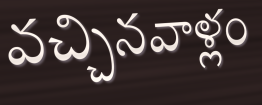
వచ్చినవాళ్లం